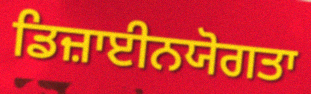
ਡਿਜ਼ਾਈਨਯੋਗਤਾ